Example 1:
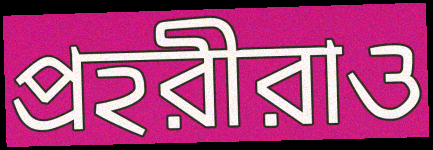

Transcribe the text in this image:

প্রহরীরাও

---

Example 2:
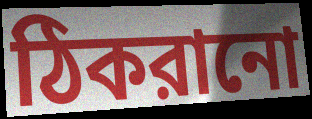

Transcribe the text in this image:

ঠিকরানো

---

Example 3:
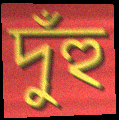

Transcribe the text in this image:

দুঁহু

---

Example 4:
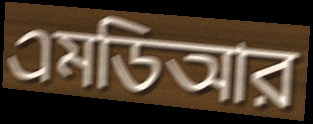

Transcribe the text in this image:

এমডিআর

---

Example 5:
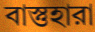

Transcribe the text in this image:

বাস্তুহারা